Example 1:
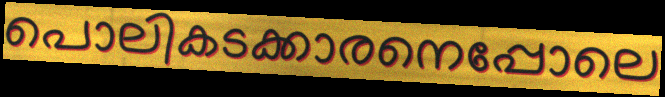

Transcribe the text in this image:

പൊലികടക്കാരനെപ്പോലെ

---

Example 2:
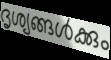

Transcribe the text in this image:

ദൃശ്യങ്ങൾക്കും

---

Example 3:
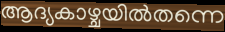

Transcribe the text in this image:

ആദ്യകാഴ്ചയിൽതന്നെ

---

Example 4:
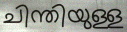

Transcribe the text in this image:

ചിന്തിയുള്ള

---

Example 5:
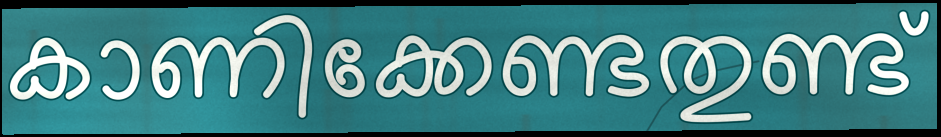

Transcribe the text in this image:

കാണിക്കേണ്ടതുണ്ട്